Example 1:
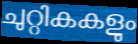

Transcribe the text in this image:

ചുറ്റികകളും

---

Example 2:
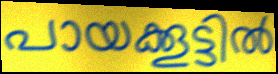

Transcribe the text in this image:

പായക്കൂട്ടിൽ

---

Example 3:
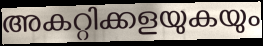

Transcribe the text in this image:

അകറ്റിക്കളയുകയും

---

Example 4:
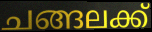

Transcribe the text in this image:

ചങ്ങലക്ക്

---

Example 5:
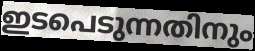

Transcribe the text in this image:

ഇടപെടുന്നതിനും